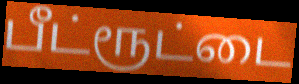
பீட்ரூட்டை